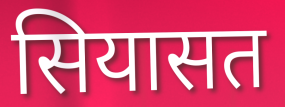
सियासत